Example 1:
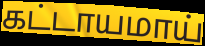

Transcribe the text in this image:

கட்டாயமாய்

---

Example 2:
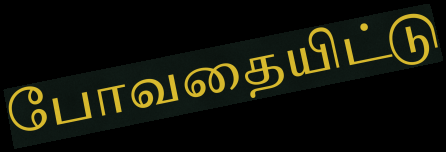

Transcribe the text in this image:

போவதையிட்டு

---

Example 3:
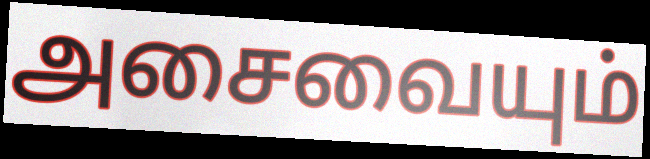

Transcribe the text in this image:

அசைவையும்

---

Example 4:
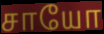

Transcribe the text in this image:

சாயோ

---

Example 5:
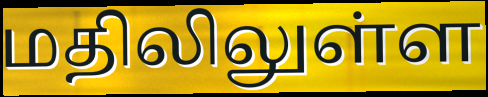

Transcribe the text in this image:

மதிலிலுள்ள